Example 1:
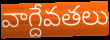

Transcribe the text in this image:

వాగ్దేవతలు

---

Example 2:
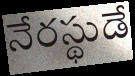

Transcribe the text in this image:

నేరస్థుడే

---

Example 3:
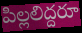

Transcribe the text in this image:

పిల్లలిద్దరూ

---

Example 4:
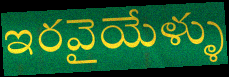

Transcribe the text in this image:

ఇరవైయేళ్ళు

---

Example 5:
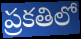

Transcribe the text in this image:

ప్రకతిలో